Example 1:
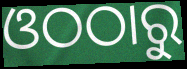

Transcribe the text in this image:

ଓଠଠାରୁ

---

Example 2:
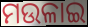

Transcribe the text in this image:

ମଉଳାଇ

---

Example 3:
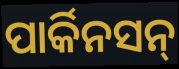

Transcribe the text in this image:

ପାର୍କିନସନ୍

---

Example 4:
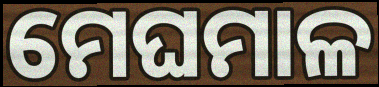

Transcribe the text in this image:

ମେଘମାଳ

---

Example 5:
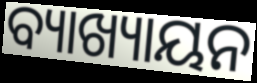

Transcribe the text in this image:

ବ୍ୟାଖ୍ୟାୟନ